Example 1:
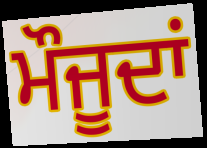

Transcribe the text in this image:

ਮੌਜੂਦਾਂ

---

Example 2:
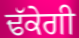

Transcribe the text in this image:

ਢੱਕੇਗੀ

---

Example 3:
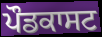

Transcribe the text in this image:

ਪੌਡਕਾਸਟ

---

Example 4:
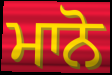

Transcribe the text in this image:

ਮਾਨੋ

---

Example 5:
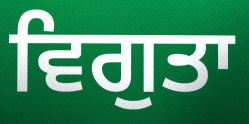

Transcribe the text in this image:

ਵਿਗੁਤਾ